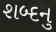
શબ્દનુ